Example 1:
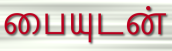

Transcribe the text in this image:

பையுடன்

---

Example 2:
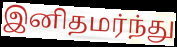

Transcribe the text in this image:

இனிதமர்ந்து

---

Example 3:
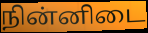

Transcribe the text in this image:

நின்னிடை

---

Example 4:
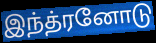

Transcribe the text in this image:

இந்த்ரனோடு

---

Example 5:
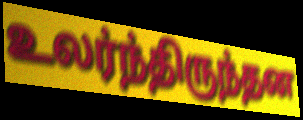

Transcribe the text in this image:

உலர்ந்திருந்தன